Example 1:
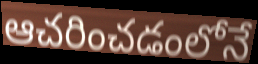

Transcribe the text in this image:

ఆచరించడంలోనే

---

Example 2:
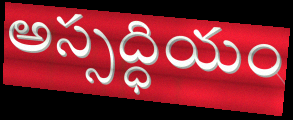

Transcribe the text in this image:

అస్సద్ధియం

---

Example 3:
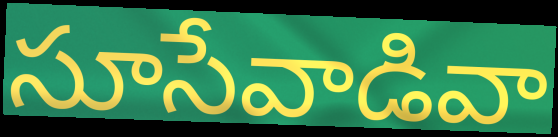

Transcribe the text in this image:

సూసేవాడివా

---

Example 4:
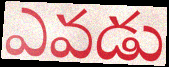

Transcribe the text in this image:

ఎవడు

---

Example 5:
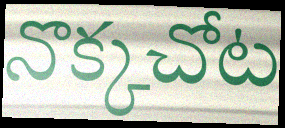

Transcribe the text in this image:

నొక్కచోట